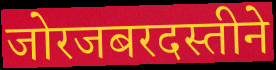
जोरजबरदस्तीने